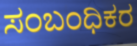
ಸಂಬಂಧಿಕರ